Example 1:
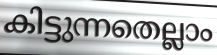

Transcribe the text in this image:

കിട്ടുന്നതെല്ലാം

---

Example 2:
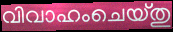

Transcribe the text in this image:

വിവാഹംചെയ്തു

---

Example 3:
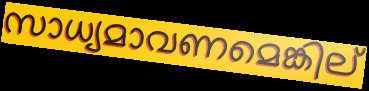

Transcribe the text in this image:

സാധ്യമാവണമെങ്കില്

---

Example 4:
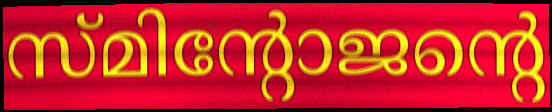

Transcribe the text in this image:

സ്മിന്റോജന്റെ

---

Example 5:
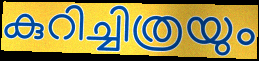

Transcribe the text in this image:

കുറിച്ചിത്രയും